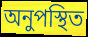
অনুপস্থিত